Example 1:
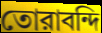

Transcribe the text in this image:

তোরাবন্দি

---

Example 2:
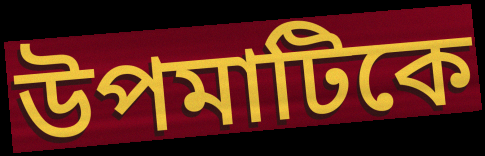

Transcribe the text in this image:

উপমাটিকে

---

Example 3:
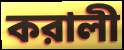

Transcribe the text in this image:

করালী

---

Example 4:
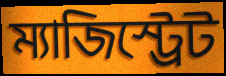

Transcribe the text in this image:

ম্যাজিস্ট্রেট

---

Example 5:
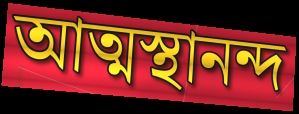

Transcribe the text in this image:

আত্মস্থানন্দ